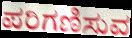
ಪರಿಗಣಿಸುವ